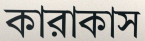
কারাকাস